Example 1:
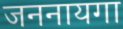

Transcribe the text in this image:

जननायगा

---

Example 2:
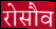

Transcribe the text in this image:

रोसौव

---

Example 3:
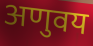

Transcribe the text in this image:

अणुवय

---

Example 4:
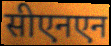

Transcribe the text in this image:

सीएनएन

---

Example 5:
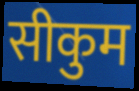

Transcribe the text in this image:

सीकुम